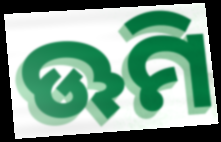
ଊମି